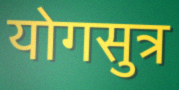
योगसुत्र